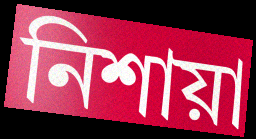
নিশায়া